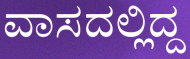
ವಾಸದಲ್ಲಿದ್ದ